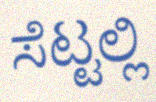
ಸೆಟ್ಟಲ್ಲಿ